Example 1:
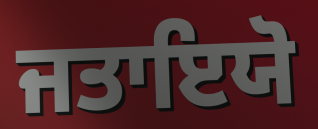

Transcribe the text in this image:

ਜਤਾਇਯੋ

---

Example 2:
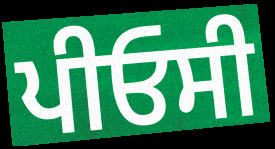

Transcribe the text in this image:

ਪੀਓਸੀ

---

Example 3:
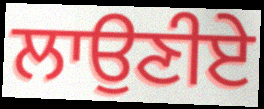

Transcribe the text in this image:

ਲਾਉਣੀਏ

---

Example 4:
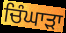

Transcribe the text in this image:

ਚਿੰਘਾੜਾ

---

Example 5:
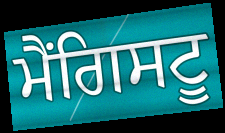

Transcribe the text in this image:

ਮੈਂਗਿਸਟੂ